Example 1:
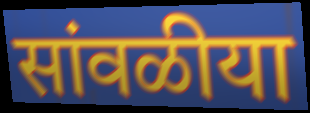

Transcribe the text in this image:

सांवळीया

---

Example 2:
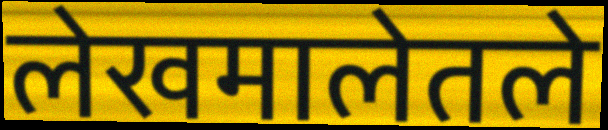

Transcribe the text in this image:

लेखमालेतले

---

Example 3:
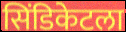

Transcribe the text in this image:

सिंडिकेटला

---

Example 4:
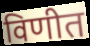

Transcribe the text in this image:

विणीत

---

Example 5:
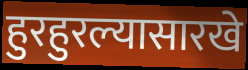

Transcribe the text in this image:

हुरहुरल्यासारखे